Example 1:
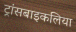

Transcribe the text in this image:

ट्रांसबाइकलिया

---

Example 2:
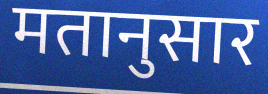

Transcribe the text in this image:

मतानुसार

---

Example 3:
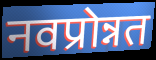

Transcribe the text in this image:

नवप्रोन्नत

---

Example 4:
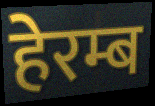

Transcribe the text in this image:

हेरम्ब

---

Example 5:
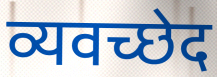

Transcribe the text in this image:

व्यवच्छेद